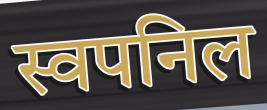
स्वपनिल